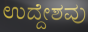
ಉದ್ದೇಶವು